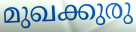
മുഖക്കുരു